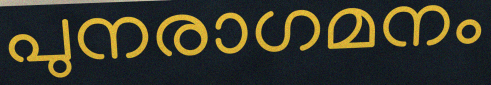
പുനരാഗമനം